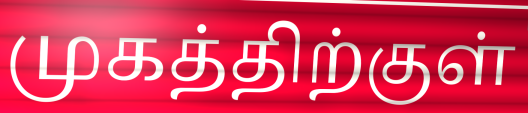
முகத்திற்குள்